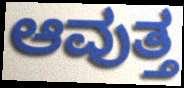
ಆವುತ್ತ